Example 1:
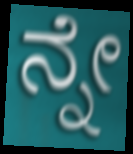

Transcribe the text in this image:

ನ್ನೇ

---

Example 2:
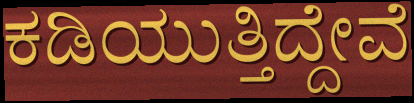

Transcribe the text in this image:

ಕಡಿಯುತ್ತಿದ್ದೇವೆ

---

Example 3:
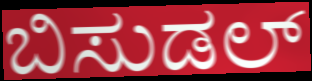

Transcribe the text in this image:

ಬಿಸುಡಲ್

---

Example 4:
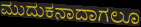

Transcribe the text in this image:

ಮುದುಕನಾದಾಗಲೂ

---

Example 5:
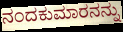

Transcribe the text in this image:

ನಂದಕುಮಾರನನ್ನು